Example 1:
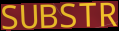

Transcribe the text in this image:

SUBSTR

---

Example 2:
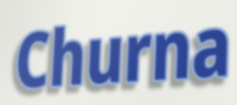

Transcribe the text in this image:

Churna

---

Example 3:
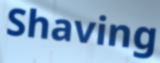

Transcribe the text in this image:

Shaving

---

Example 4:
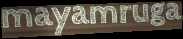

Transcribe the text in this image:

mayamruga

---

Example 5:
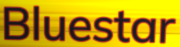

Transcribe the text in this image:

Bluestar